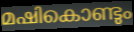
മഷികൊണ്ടും